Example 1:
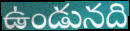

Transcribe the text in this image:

ఉండునది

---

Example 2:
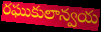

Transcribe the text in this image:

రఘుకులాన్వయ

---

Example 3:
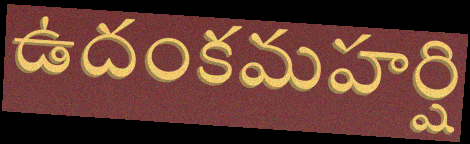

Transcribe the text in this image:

ఉదంకమహర్షి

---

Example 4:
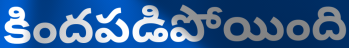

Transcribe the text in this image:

కిందపడిపోయింది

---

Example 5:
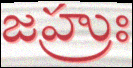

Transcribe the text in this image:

జహ్రుః